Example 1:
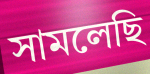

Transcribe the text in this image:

সামলেছি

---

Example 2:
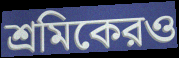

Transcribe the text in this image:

শ্রমিকেরও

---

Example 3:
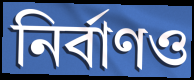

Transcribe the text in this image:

নির্বাণও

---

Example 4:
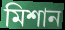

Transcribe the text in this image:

মিশান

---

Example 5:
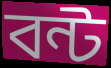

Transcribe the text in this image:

বন্ট